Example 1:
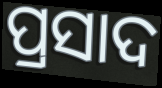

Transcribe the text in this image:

ପ୍ରସାଦ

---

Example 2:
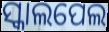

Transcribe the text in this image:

ସ୍କାଲପେଲ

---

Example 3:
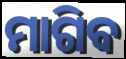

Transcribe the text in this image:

ମାଗିବ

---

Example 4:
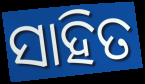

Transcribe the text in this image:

ସାହିତ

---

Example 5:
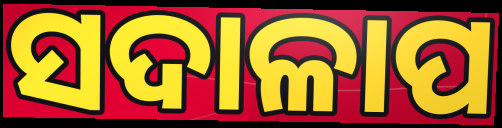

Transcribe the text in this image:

ସଦାଳାପ